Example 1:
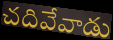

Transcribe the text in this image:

చదివేవాడు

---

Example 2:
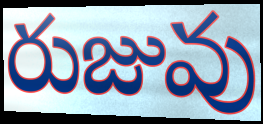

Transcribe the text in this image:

రుజువు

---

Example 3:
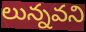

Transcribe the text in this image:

లున్నవని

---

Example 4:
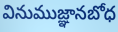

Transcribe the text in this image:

వినుముజ్ఞానబోధ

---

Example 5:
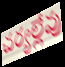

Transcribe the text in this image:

చర్యల్లేవు